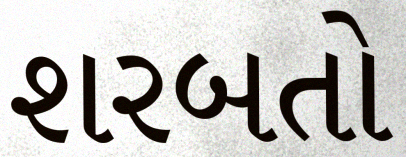
શરબતો